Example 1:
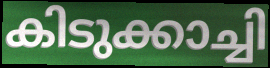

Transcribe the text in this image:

കിടുക്കാച്ചി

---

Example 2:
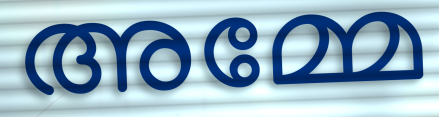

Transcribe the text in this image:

അമ്മേ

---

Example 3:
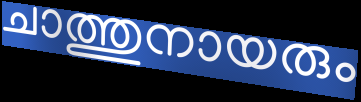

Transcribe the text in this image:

ചാത്തുനായരും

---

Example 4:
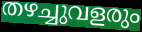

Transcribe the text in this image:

തഴച്ചുവളരും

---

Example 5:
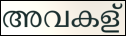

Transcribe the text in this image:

അവകള്